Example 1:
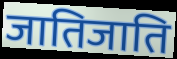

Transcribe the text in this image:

जातिजाति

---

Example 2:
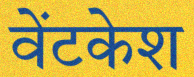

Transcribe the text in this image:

वेंटकेश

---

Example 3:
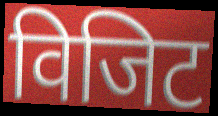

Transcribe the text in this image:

विजिट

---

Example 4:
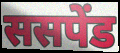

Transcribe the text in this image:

ससपेंड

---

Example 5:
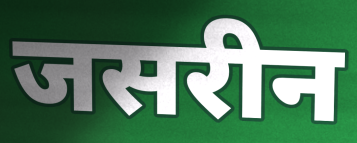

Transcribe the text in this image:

जसरीन